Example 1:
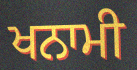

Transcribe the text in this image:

ਖਨਾਮੀ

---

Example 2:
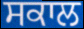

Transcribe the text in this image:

ਸਕਾਲ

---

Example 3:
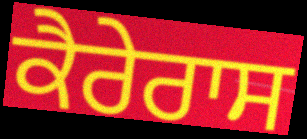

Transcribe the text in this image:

ਕੈਰੇਰਾਸ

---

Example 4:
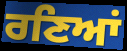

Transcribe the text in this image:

ਰਣਿਆਂ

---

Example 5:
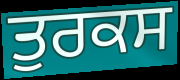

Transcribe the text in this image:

ਤੁਰਕਸ